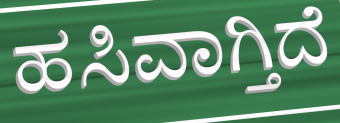
ಹಸಿವಾಗ್ತಿದೆ